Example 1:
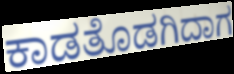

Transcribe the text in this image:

ಕಾಡತೊಡಗಿದಾಗ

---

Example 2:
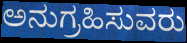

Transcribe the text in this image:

ಅನುಗ್ರಹಿಸುವರು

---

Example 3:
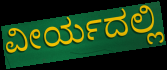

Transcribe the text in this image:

ವೀರ್ಯದಲ್ಲಿ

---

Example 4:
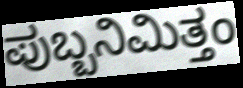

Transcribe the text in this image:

ಪುಬ್ಬನಿಮಿತ್ತಂ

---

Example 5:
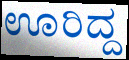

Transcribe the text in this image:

ಊರಿದ್ದ